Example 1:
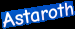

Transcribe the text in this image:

Astaroth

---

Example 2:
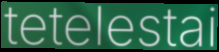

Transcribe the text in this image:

tetelestai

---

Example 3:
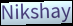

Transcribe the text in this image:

Nikshay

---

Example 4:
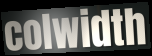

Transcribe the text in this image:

colwidth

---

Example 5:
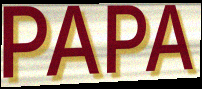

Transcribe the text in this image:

PAPA